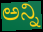
ಅನ್ನಿ